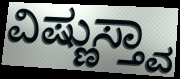
ವಿಷ್ಣುಸ್ತ್ವಾ